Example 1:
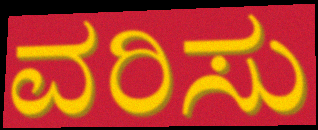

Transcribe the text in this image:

ವರಿಸು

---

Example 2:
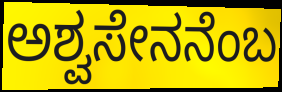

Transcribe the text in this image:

ಅಶ್ವಸೇನನೆಂಬ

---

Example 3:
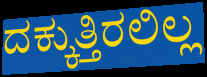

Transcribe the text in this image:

ದಕ್ಕುತ್ತಿರಲಿಲ್ಲ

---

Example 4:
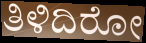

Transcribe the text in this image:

ತಿಳಿದಿರೋ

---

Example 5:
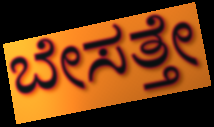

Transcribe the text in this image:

ಬೇಸತ್ತೇ